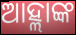
ଆହ୍ଲାଙ୍କ